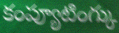
కంప్యూటింగ్కు